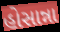
હોસાન્ના